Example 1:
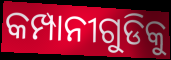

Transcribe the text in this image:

କମ୍ପାନୀଗୁଡିକୁ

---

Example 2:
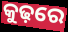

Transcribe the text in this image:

କୁଢ଼ରେ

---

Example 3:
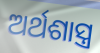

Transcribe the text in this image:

ଅର୍ଥଶାସ୍ତ୍ର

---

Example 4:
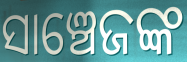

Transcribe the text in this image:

ସାଞ୍ଚେଜଙ୍କ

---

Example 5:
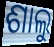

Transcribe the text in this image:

ଶାଲୁ